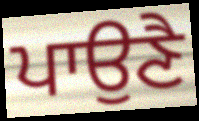
ਪਾਉਣੈ